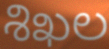
శిఖల